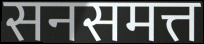
सनसमत्त